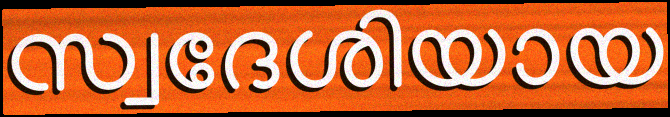
സ്വദേശിയായ